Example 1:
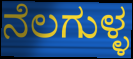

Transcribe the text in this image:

ನೆಲಗುಳ್ಳ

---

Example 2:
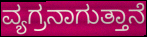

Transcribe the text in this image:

ವ್ಯಗ್ರನಾಗುತ್ತಾನೆ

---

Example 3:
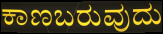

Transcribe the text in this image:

ಕಾಣಬರುವುದು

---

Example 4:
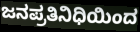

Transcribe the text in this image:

ಜನಪ್ರತಿನಿಧಿಯಿಂದ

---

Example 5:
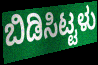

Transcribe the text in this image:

ಬಿಡಿಸಿಟ್ಟಳು